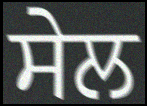
ਸੇਲ